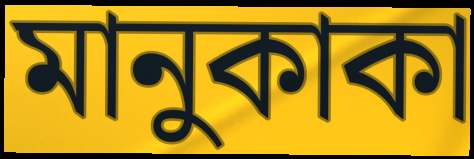
মানুকাকা